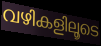
വഴികളിലൂടെ